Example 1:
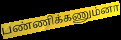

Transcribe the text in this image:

பண்ணிக்கணும்னா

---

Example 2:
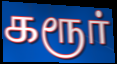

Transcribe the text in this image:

கரூர்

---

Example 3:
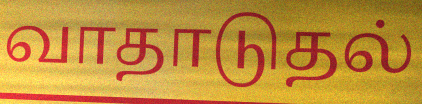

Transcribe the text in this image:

வாதாடுதல்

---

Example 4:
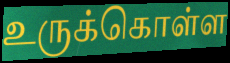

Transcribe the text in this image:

உருக்கொள்ள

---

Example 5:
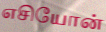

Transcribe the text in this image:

எசியோன்